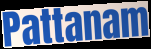
Pattanam